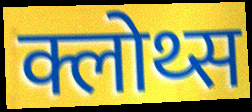
क्लोथ्स